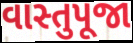
વાસ્તુપૂજા